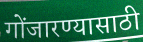
गोंजारण्यासाठी